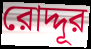
রোদ্দূর